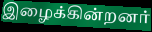
இழைக்கின்றனர்